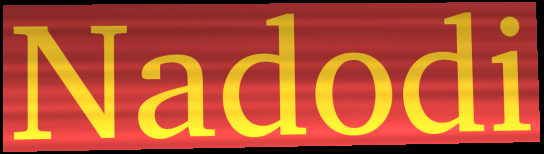
Nadodi